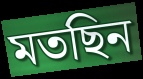
মতছিন